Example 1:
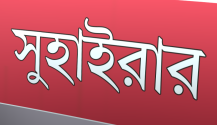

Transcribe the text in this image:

সুহাইরার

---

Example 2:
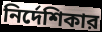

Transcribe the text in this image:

নির্দেশিকার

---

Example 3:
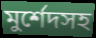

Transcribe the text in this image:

মুর্শেদসহ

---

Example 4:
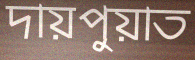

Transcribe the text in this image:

দায়পুয়াত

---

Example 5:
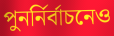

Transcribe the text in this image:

পুনর্নির্বাচনেও